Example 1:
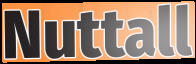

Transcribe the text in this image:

Nuttall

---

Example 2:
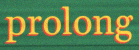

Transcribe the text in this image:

prolong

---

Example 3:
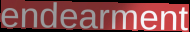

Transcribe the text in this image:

endearment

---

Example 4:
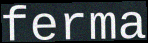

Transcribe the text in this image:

ferma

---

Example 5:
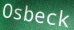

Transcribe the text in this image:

Osbeck